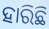
ହାରିଛି